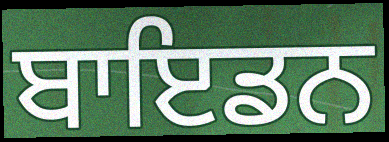
ਬਾਇਡਨ